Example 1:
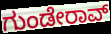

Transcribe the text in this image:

ಗುಂಡೇರಾವ್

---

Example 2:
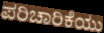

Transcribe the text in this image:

ಪರಿಚಾರಿಕೆಯು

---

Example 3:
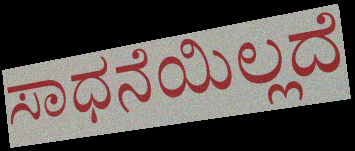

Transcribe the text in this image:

ಸಾಧನೆಯಿಲ್ಲದೆ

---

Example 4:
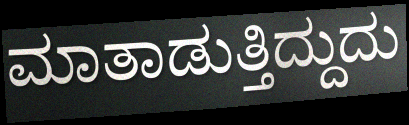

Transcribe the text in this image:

ಮಾತಾಡುತ್ತಿದ್ದುದು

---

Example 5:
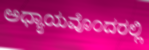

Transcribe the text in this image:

ಅಧ್ಯಾಯವೊಂದರಲ್ಲಿ